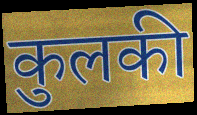
कुलकी